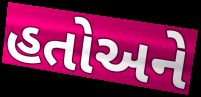
હતોઅને